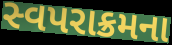
સ્વપરાક્રમના